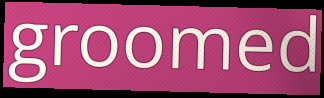
groomed